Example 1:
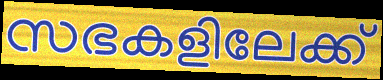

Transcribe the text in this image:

സഭകളിലേക്ക്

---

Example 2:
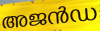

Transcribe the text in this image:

അജൻഡ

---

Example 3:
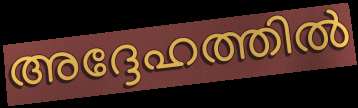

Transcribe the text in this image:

അദ്ദേഹത്തിൽ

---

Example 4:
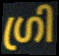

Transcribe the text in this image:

ഗ്രി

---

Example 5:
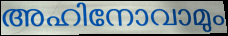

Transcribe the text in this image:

അഹിനോവാമും